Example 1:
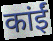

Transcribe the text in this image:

कांईं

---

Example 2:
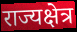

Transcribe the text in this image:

राज्यक्षेत्र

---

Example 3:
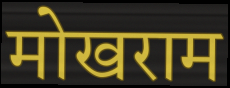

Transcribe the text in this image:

मोखराम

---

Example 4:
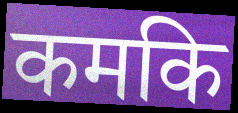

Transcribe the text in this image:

कमकि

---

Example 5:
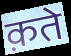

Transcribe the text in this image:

क़ते